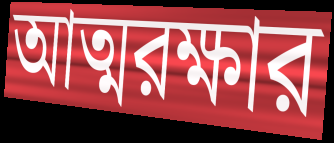
আত্মরক্ষার